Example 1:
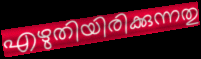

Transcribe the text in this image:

എഴുതിയിരിക്കുന്നതു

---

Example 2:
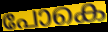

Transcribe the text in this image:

പോകെ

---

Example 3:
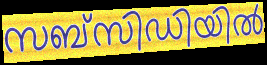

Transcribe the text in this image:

സബ്സിഡിയിൽ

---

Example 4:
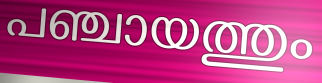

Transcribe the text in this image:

പഞ്ചായത്തും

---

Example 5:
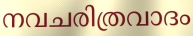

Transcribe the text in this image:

നവചരിത്രവാദം